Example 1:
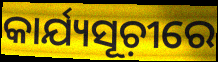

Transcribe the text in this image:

କାର୍ଯ୍ୟସୂଚ଼ୀରେ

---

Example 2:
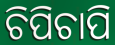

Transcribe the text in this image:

ଚିପିଚାପି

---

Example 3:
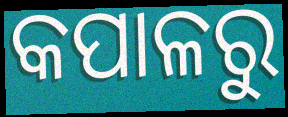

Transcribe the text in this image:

କପାଳରୁ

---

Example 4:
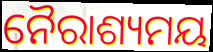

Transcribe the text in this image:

ନୈରାଶ୍ୟମୟ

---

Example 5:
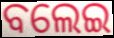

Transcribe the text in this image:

ବଲେଇ